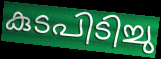
കുടപിടിച്ചു